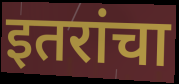
इतरांचा